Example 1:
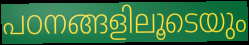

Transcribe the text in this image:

പഠനങ്ങളിലൂടെയും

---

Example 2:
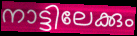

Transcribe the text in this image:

നാട്ടിലേക്കും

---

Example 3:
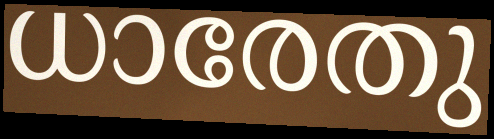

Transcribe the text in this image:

ധാരേതു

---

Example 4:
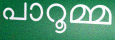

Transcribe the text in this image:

പാറൂമ്മ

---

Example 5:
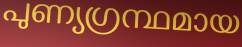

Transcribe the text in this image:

പുണ്യഗ്രന്ഥമായ